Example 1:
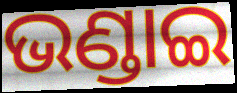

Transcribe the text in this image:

ଭଣ୍ଡାଇ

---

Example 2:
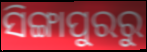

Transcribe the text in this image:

ସିଙ୍ଗାପୁରରୁ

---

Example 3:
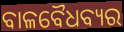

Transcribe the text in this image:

ବାଳବୈଧବ୍ୟର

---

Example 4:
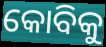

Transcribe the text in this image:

କୋବିକୁ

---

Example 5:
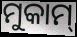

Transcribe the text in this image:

ମୁକାମ୍